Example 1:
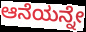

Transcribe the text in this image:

ಆನೆಯನ್ನೇ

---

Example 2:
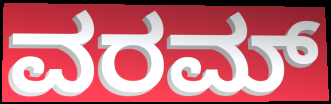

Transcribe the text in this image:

ವರಮ್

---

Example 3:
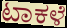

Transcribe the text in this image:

ಟಾಕಳೆ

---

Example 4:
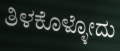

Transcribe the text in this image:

ತಿಳಕೊಳ್ಳೋದು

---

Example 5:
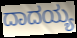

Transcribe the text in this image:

ದಾದಯ್ಯ